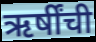
ऋर्षींची